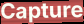
Capture